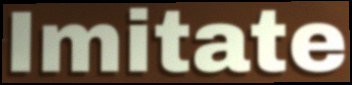
Imitate